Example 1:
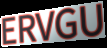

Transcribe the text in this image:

ERVGU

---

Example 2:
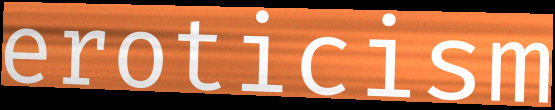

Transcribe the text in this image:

eroticism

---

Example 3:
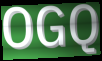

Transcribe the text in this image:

OGQ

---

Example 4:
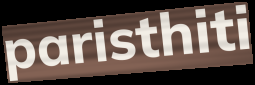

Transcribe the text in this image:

paristhiti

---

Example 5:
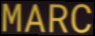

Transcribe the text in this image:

MARC